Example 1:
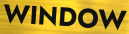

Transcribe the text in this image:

WINDOW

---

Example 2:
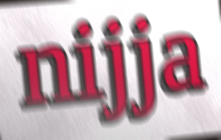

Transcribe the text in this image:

nijja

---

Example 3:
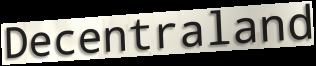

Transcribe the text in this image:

Decentraland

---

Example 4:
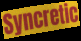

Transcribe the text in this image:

Syncretic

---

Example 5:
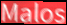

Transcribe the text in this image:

Malos